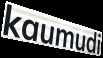
kaumudi